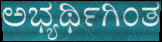
ಅಭ್ಯರ್ಥಿಗಿಂತ